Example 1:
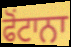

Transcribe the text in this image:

ਫੋਂਟਾਨਾ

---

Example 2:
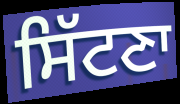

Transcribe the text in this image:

ਸਿੱਟਣਾ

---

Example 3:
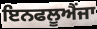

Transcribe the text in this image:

ਇਨਫਲੂਐਂਜਾ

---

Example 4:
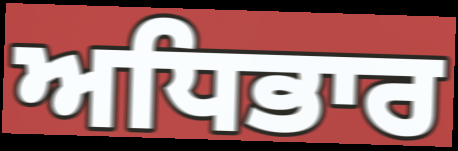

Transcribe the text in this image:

ਅਧਿਭਾਰ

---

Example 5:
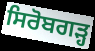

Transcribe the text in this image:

ਸਿਰੋਬਗੜ੍ਹ